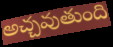
అచ్చవుతుంది